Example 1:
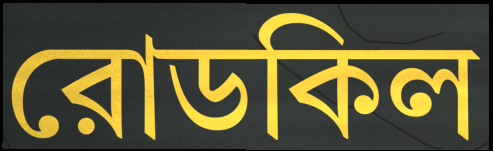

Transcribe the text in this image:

রোডকিল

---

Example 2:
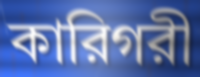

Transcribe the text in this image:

কারিগরী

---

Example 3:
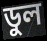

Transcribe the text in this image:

ডুল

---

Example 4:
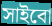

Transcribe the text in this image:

সাইবো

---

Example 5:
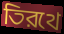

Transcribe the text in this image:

তিরথে